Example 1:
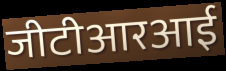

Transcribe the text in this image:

जीटीआरआई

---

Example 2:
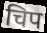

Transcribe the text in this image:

चिप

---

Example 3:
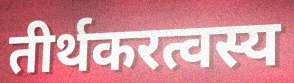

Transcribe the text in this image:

तीर्थकरत्वस्य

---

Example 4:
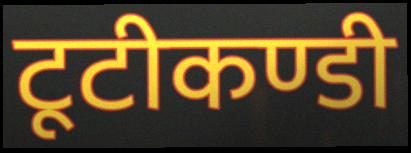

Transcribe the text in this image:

टूटीकण्डी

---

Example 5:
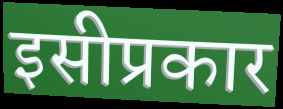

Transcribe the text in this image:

इसीप्रकार